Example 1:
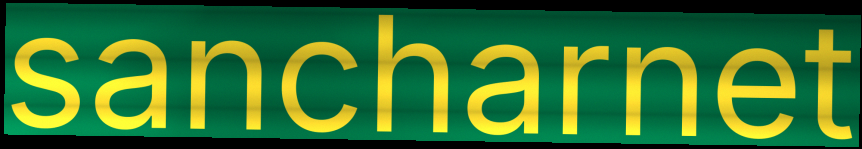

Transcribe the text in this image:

sancharnet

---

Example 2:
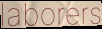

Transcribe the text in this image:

laborers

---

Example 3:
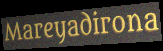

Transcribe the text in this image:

Mareyadirona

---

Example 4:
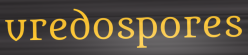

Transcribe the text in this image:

uredospores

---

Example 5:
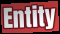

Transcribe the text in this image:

Entity